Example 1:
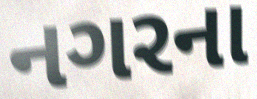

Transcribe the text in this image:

નગરના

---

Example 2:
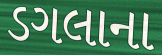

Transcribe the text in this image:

ડગલાના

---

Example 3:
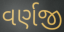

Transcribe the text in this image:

વર્ણજી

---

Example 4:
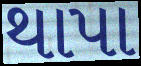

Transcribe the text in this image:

થાપા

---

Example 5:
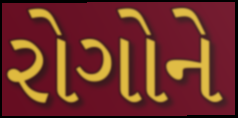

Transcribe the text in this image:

રોગોને